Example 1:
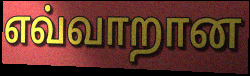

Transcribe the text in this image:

எவ்வாறான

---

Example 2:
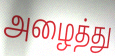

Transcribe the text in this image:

அழைத்து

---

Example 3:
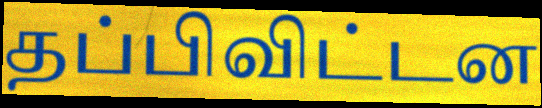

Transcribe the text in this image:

தப்பிவிட்டன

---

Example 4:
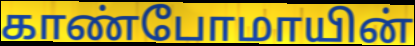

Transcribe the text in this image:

காண்போமாயின்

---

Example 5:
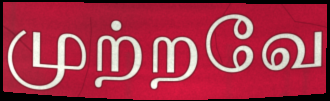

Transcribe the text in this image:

முற்றவே